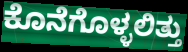
ಕೊನೆಗೊಳ್ಳಲಿತ್ತು